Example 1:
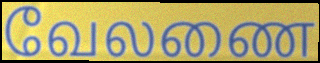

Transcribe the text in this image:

வேலணை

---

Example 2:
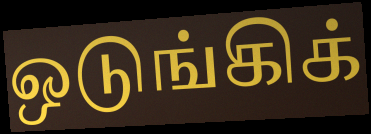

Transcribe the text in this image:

ஒடுங்கிக்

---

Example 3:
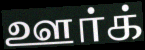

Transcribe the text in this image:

ஊர்க்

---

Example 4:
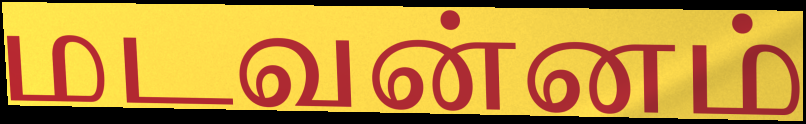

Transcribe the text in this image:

மடவன்னம்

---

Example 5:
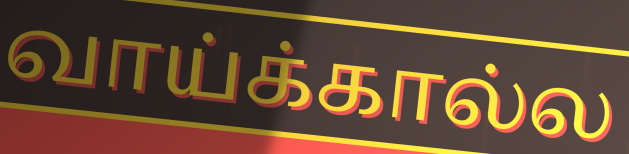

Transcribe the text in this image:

வாய்க்கால்ல